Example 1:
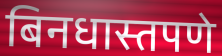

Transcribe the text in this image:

बिनधास्तपणे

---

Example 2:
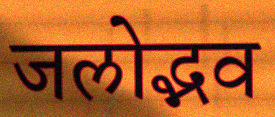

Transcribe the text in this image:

जलोद्भव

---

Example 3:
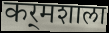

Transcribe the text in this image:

कर्मशाला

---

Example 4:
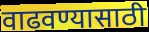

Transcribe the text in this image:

वाढवण्यासाठी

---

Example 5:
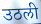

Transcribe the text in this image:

उठली